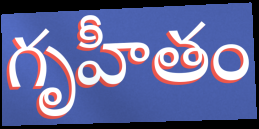
గృహీతం